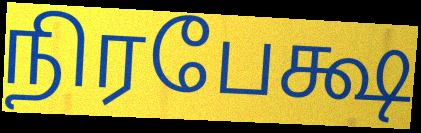
நிரபேக்ஷ